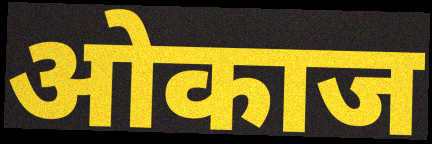
ओकाज